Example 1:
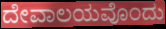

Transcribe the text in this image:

ದೇವಾಲಯವೊಂದು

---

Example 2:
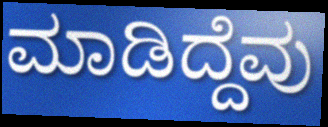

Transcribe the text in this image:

ಮಾಡಿದ್ದೆವು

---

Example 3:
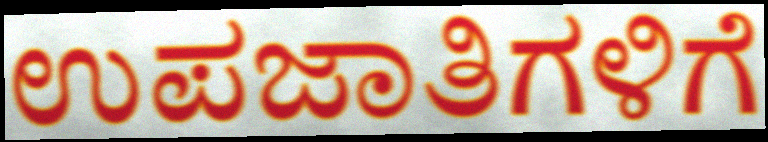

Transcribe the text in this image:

ಉಪಜಾತಿಗಳಿಗೆ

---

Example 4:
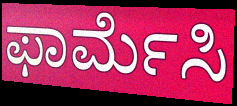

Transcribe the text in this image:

ಫಾರ್ಮೆಸಿ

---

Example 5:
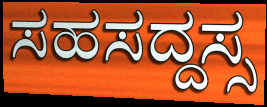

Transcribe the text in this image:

ಸಹಸದ್ದಸ್ಸ